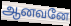
ஆனவனே